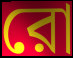
রো